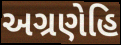
અગ્રણેહિ